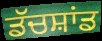
ਡੱਚਸ਼ਾਂਡ